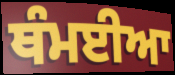
ਥੰਮਈਆ